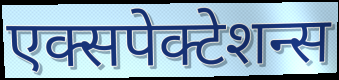
एक्सपेक्टेशन्स